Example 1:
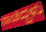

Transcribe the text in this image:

ನಾಚಿದ್ದಳು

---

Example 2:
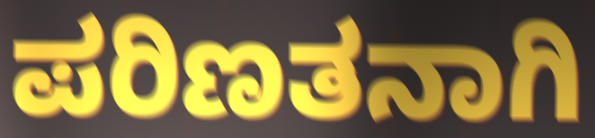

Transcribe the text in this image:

ಪರಿಣತನಾಗಿ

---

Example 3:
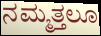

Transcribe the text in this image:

ನಮ್ಮತ್ತಲೂ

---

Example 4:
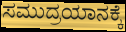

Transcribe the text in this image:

ಸಮುದ್ರಯಾನಕ್ಕೆ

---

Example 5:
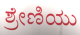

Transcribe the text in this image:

ಶ್ರೇಣಿಯು